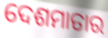
ଦେଶମାତାର